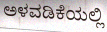
ಅಳವಡಿಕೆಯಲ್ಲಿ